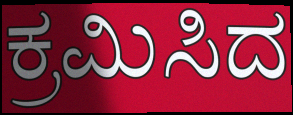
ಕ್ರಮಿಸಿದ